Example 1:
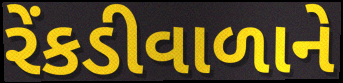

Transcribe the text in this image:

રેંકડીવાળાને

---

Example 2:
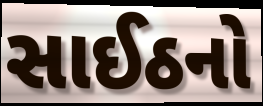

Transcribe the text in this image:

સાઈઠનો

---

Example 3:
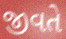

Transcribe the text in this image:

જીવતે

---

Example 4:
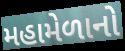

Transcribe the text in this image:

મહામેળાનો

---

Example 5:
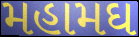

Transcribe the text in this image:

મહામઘ